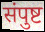
संपुष्ट